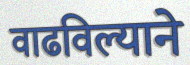
वाढविल्याने